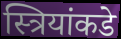
स्त्रियांकडे